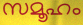
സമൂഹം